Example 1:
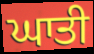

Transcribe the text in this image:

ਘਾਤੀ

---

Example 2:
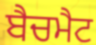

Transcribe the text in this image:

ਬੈਚਮੈਟ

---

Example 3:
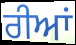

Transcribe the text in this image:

ਰੀਆਂ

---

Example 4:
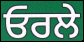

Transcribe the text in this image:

ਓਰਲੇ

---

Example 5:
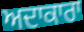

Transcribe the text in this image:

ਅਦਾਕਾਰਾ